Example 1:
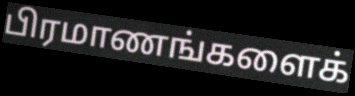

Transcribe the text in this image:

பிரமாணங்களைக்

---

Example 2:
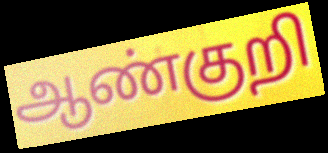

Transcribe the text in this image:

ஆண்குறி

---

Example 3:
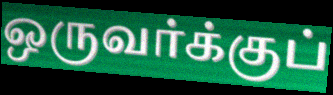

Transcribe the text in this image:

ஒருவர்க்குப்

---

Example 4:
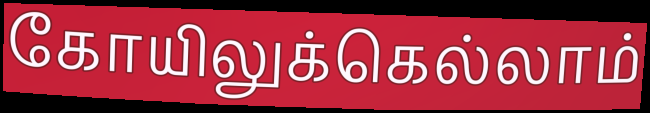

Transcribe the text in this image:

கோயிலுக்கெல்லாம்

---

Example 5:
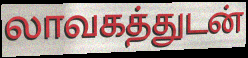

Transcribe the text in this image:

லாவகத்துடன்